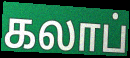
கலாப்